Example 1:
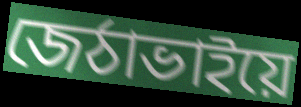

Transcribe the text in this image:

জেঠাভাইয়ে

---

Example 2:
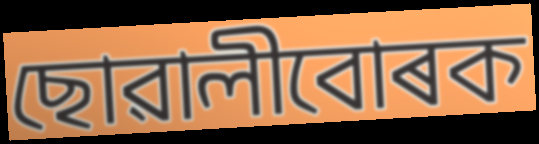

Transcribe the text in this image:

ছোৱালীবোৰক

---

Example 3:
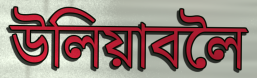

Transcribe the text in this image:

উলিয়াবলৈ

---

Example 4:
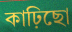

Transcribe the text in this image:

কাঢ়িছো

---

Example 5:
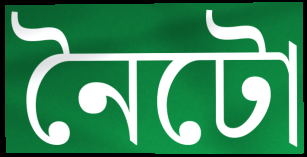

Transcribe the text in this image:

নৈটো